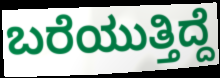
ಬರೆಯುತ್ತಿದ್ದೆ